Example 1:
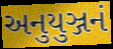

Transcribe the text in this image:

અનુયુઞ્જનં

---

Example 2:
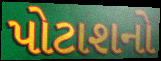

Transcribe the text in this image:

પોટાશનો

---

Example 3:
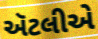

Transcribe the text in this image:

ઍટલીએ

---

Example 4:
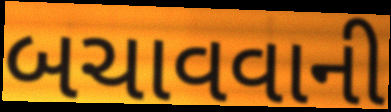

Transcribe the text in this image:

બચાવવાની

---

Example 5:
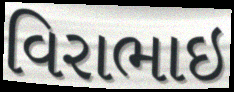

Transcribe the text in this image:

વિરાભાઇ